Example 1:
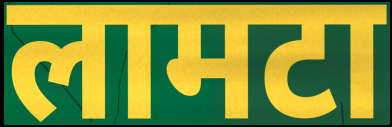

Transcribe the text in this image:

लामटा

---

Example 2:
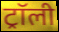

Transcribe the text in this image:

ट्रॉली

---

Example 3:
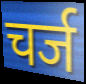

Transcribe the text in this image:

चर्ज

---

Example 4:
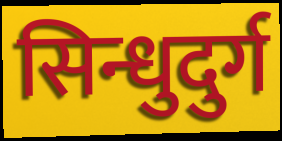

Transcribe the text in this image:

सिन्धुदुर्ग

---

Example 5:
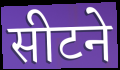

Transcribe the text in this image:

सीटने